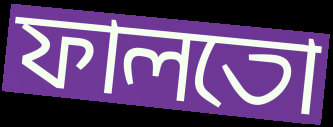
ফালতো